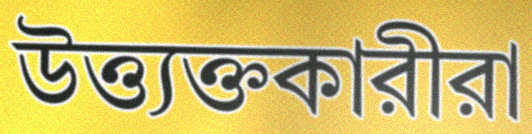
উত্ত্যক্তকারীরা